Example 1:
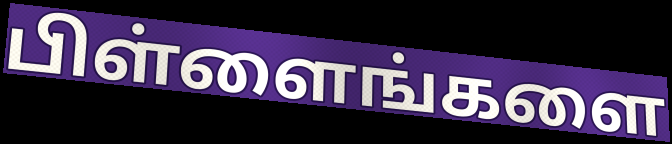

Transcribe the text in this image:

பிள்ளைங்களை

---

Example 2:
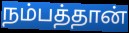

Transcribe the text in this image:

நம்பத்தான்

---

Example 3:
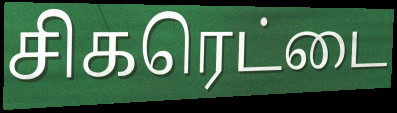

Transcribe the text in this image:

சிகரெட்டை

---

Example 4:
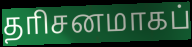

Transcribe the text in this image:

தரிசனமாகப்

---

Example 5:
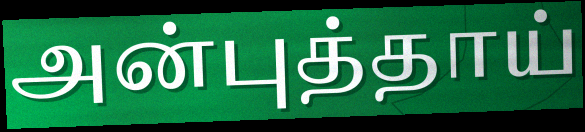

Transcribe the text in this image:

அன்புத்தாய்